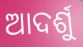
ଆଦର୍ଶୁ